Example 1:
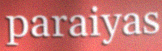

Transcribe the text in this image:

paraiyas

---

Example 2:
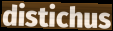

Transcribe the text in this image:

distichus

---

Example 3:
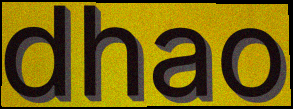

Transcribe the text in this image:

dhao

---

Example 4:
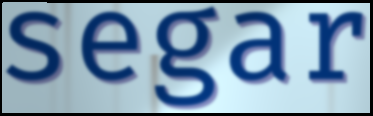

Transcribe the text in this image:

segar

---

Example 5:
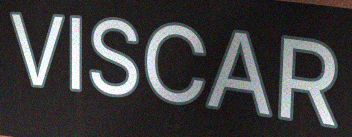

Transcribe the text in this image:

VISCAR